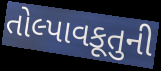
તોલ્પાવકૂતુની